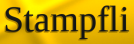
Stampfli